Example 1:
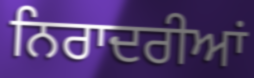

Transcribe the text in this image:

ਨਿਰਾਦਰੀਆਂ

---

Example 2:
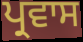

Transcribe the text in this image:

ਪ੍ਰਵਾਸ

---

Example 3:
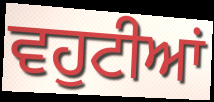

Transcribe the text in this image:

ਵਹੁਟੀਆਂ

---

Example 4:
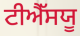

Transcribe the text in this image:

ਟੀਐੱਸਯੂ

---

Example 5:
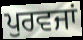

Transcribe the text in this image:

ਪੁਰਵਜਾਂ